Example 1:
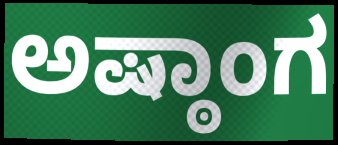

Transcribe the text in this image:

ಅಷ್ಠಾಂಗ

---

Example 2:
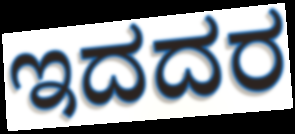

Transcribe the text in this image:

ಇದದರ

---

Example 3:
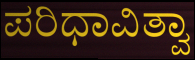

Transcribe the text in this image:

ಪರಿಧಾವಿತ್ವಾ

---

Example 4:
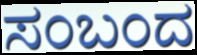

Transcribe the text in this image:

ಸಂಬಂದ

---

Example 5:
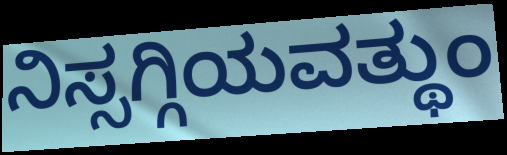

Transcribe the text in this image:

ನಿಸ್ಸಗ್ಗಿಯವತ್ಥುಂ